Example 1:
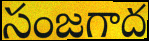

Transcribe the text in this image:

సంజగాద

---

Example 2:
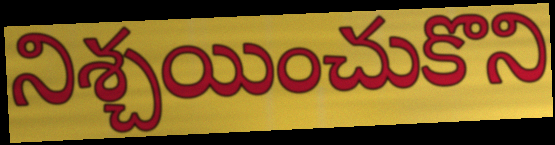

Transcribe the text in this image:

నిశ్చయించుకొని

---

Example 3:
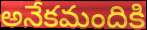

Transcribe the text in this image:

అనేకమందికి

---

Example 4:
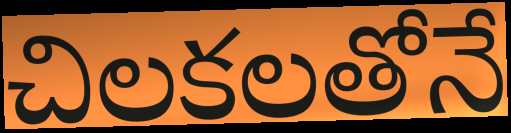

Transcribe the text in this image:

చిలకలతోనే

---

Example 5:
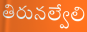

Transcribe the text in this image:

తిరునల్వేలి